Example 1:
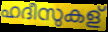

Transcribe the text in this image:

ഹദീസുകള്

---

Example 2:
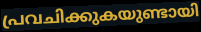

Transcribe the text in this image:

പ്രവചിക്കുകയുണ്ടായി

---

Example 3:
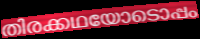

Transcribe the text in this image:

തിരക്കഥയോടൊപ്പം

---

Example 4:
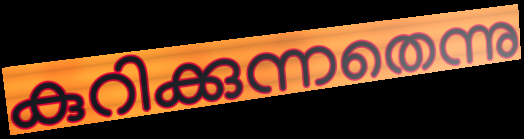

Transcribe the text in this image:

കുറിക്കുന്നതെന്നു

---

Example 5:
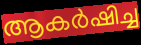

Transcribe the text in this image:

ആകർഷിച്ച